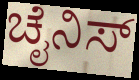
ಚೈನಿಸ್